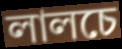
লালচে